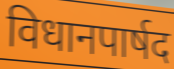
विधानपार्षद